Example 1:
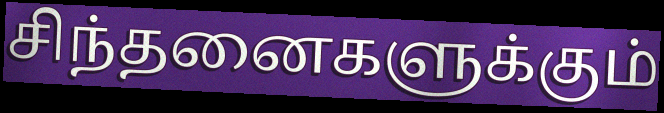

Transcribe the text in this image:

சிந்தனைகளுக்கும்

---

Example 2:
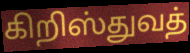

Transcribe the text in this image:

கிறிஸ்துவத்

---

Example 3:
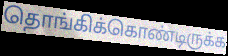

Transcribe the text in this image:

தொங்கிக்கொண்டிருக்க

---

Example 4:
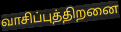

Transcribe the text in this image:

வாசிப்புத்திறனை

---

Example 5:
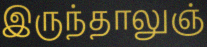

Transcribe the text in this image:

இருந்தாலுஞ்